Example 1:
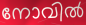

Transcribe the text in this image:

നോവിൽ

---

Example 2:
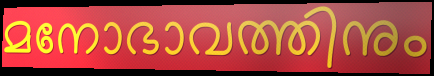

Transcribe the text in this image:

മനോഭാവത്തിനും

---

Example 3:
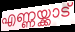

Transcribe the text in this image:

എണ്ണയ്ക്കാട്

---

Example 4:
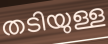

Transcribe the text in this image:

തടിയുള്ള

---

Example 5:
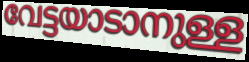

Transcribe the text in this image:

വേട്ടയാടാനുള്ള